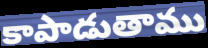
కాపాడుతాము